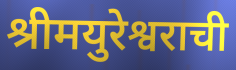
श्रीमयुरेश्वराची